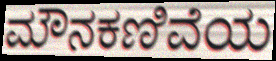
ಮೌನಕಣಿವೆಯ